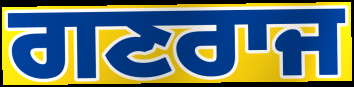
ਗਣਰਾਜ